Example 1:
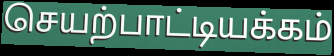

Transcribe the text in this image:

செயற்பாட்டியக்கம்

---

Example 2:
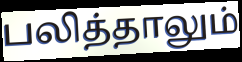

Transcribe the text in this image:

பலித்தாலும்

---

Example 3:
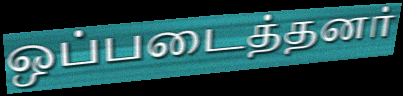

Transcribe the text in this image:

ஒப்படைத்தனர்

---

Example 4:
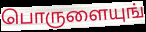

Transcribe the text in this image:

பொருளையுங்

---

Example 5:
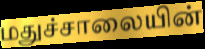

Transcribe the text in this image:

மதுச்சாலையின்